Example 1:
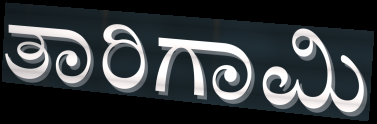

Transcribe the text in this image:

ತಾರಿಗಾಮಿ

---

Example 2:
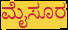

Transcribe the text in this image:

ಮೈಸೂರ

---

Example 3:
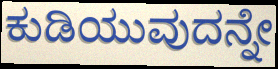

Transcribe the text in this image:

ಕುಡಿಯುವುದನ್ನೇ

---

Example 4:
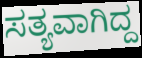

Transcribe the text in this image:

ಸತ್ಯವಾಗಿದ್ದ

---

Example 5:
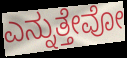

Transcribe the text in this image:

ಎನ್ನುತ್ತೇವೋ